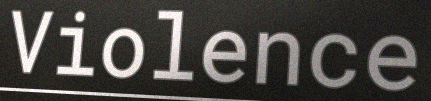
Violence